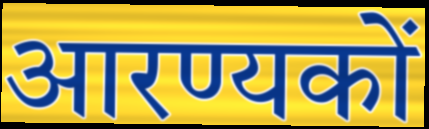
आरण्यकों